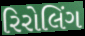
રિરોલિંગ